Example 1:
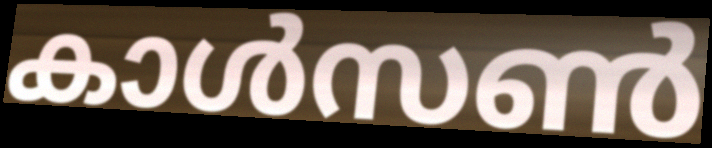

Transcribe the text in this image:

കാൾസൺ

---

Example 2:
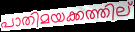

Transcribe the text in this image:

പാതിമയക്കത്തില്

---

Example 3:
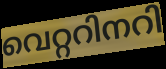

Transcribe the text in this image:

വെറ്ററിനറി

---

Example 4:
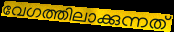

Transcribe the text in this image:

വേഗത്തിലാക്കുന്നത്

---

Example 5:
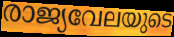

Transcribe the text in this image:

രാജ്യവേലയുടെ